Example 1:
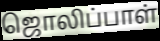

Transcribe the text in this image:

ஜொலிப்பாள்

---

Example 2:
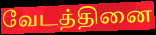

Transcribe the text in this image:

வேடத்தினை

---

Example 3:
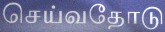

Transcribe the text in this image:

செய்வதோடு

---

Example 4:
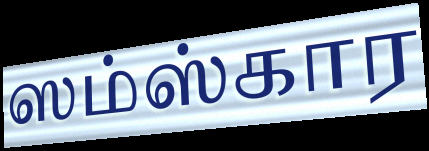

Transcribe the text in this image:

ஸம்ஸ்கார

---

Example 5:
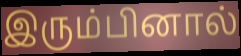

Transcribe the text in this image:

இரும்பினால்